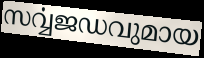
സൎവ്വജഡവുമായ